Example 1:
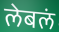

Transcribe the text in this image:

लेबलं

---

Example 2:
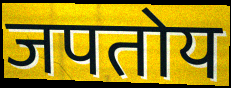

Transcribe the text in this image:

जपतोय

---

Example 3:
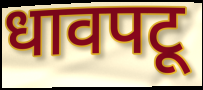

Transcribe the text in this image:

धावपटू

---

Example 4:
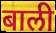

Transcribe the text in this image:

बाली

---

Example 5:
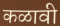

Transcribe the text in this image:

कळावी